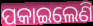
ପକାଇଲେଣି